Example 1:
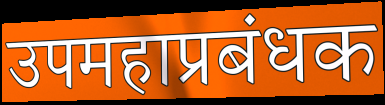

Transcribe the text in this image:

उपमहाप्रबंधक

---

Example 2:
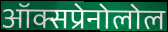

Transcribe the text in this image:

ऑक्सप्रेनोलोल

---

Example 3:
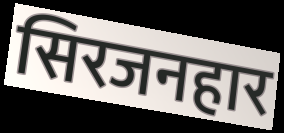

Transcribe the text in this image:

सिरजनहार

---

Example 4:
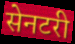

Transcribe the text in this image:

सेनटरी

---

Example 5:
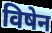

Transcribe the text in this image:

विषेन